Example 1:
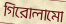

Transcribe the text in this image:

গিরোলামো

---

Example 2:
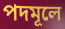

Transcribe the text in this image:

পদমূলে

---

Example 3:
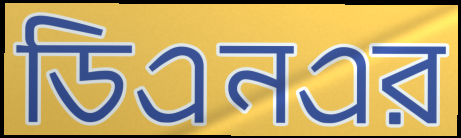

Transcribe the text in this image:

ডিএনএর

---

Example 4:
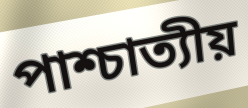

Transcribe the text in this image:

পাশ্চাত্যীয়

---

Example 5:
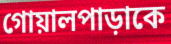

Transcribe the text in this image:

গোয়ালপাড়াকে